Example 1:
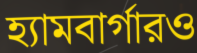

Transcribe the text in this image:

হ্যামবার্গারও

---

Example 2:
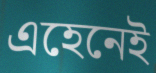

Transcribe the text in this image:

এহেনেই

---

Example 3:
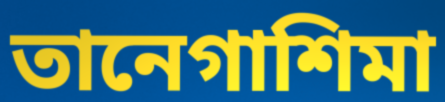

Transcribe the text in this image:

তানেগাশিমা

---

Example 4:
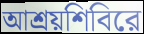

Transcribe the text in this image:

আশ্রয়শিবিরে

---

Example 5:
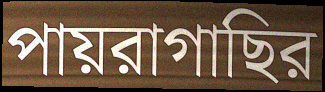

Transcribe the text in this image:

পায়রাগাছির